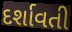
દર્શાવતી